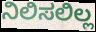
ನಿಲಿಸಲಿಲ್ಲ